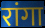
रांगा